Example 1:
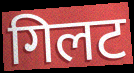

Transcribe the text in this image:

गिलट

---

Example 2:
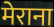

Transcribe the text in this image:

मेराना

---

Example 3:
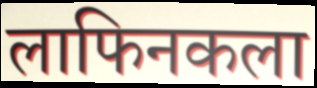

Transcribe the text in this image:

लाफिनकला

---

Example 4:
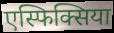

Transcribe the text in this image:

एस्फिक्सिया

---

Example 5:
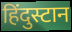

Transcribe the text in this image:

हिंदुस्टान